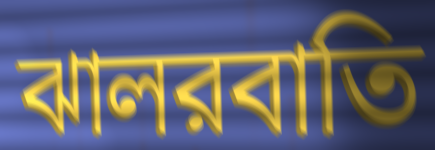
ঝালরবাতি